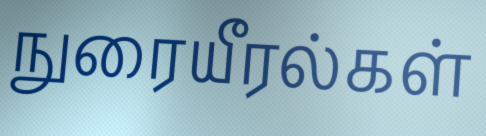
நுரையீரல்கள்